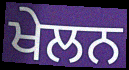
ਖੇਲਨ